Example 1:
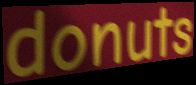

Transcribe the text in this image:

donuts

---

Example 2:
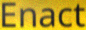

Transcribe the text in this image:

Enact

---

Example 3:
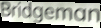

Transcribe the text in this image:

Bridgeman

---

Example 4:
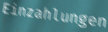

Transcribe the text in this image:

Einzahlungen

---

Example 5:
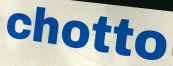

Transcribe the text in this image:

chotto